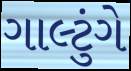
ગાલ્ટુંગે